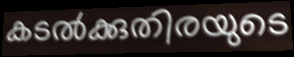
കടൽക്കുതിരയുടെ